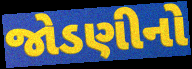
જોડણીનો